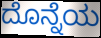
ದೊನ್ನೆಯ